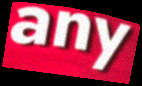
any